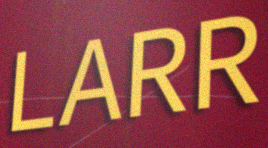
LARR